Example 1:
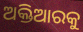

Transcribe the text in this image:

ଅକ୍ତିଆରକୁ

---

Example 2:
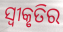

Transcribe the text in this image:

ସ୍ଵୀକୃତିର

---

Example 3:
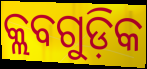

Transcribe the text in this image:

କ୍ଲବଗୁଡ଼ିକ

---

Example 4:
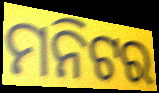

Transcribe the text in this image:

ମନିଟର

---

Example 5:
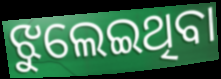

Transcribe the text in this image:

ଝୁଲେଇଥିବା